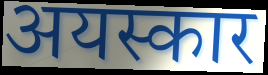
अयस्कार